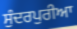
ਸੁੰਦਰਪੁਰੀਆ